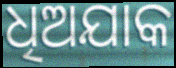
ଧିଅଯାକ